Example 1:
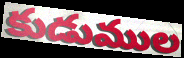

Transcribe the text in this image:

కుడుముల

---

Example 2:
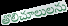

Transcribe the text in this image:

తొలిచూలులను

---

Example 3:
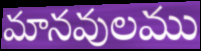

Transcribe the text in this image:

మానవులము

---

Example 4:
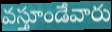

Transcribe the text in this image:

వస్తూండేవారు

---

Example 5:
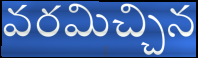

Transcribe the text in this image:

వరమిచ్చిన